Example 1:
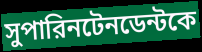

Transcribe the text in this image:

সুপারিনটেনডেন্টকে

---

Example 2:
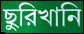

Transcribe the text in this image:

ছুরিখানি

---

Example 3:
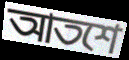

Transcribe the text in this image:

আতশে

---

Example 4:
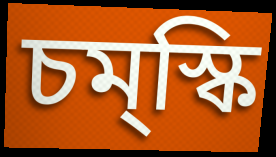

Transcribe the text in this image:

চম্‌স্কি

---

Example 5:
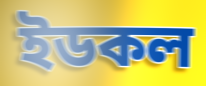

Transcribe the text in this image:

ইডকল